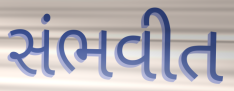
સંભવીત